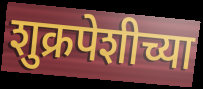
शुक्रपेशीच्या